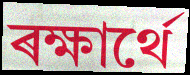
ৰক্ষাৰ্থে